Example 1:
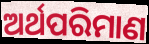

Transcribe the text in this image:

ଅର୍ଥପରିମାଣ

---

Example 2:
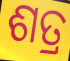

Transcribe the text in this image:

ଶତ୍ର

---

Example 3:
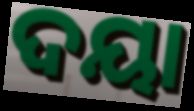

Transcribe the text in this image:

ଦୟା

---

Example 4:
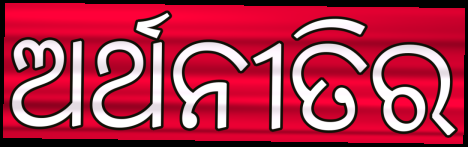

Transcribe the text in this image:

ଅର୍ଥନୀତିର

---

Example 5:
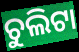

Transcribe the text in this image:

ଚୁଲିଟା